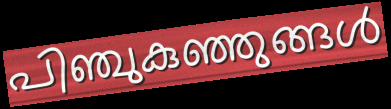
പിഞ്ചുകുഞ്ഞുങ്ങൾ